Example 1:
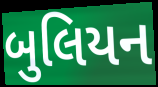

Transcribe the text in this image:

બુલિયન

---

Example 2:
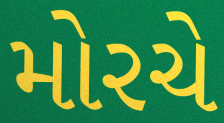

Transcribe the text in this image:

મોરચે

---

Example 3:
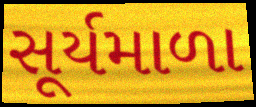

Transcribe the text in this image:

સૂર્યમાળા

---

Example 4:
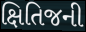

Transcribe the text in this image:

ક્ષિતિજની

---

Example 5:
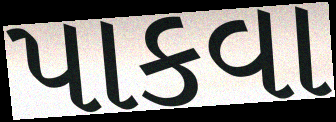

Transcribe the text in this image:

પાકવા